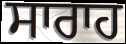
ਸਾਰਾਹ